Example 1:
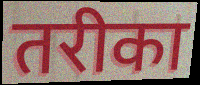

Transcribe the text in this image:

तरीका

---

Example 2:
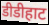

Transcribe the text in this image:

डीडीहाट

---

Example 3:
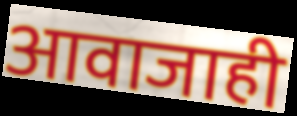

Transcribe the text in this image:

आवाजाही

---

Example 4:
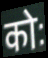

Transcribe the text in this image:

कोः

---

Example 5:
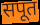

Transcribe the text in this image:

सपूत